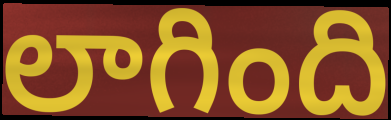
లాగింది